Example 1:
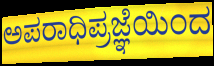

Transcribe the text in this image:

ಅಪರಾಧಿಪ್ರಜ್ಞೆಯಿಂದ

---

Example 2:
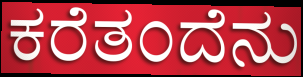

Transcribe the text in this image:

ಕರೆತಂದೆನು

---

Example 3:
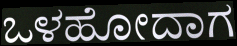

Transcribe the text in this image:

ಒಳಹೋದಾಗ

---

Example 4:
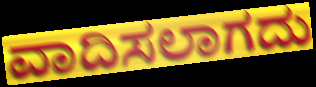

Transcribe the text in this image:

ವಾದಿಸಲಾಗದು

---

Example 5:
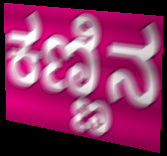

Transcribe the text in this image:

ಕಣ್ಣಿನ